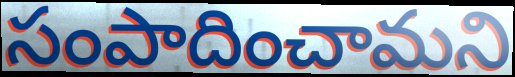
సంపాదించామని